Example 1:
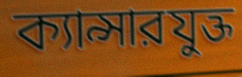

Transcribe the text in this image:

ক্যান্সারযুক্ত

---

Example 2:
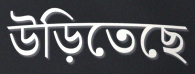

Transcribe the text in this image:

উড়িতেছে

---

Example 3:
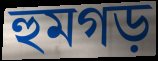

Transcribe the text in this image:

হুমগড়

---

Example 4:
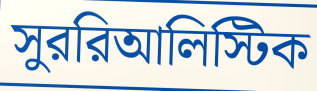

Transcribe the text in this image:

সুররিআলিস্টিক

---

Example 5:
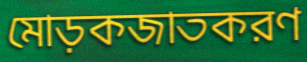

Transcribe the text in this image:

মোড়কজাতকরণ